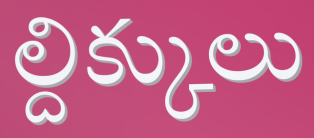
ల్దిక్కులు